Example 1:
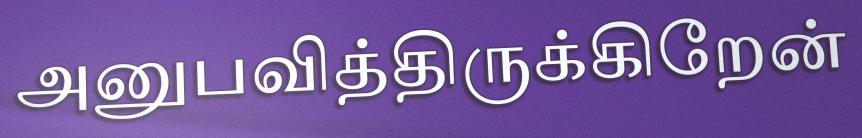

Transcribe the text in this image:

அனுபவித்திருக்கிறேன்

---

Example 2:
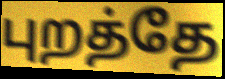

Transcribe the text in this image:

புறத்தே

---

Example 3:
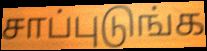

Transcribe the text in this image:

சாப்புடுங்க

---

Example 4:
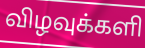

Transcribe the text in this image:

விழவுக்களி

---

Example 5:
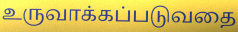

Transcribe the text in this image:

உருவாக்கப்படுவதை